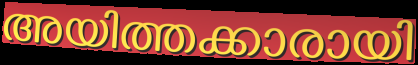
അയിത്തക്കാരായി